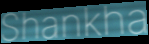
Shankha